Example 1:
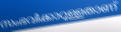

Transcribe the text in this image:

സംഭവിക്കാറുള്ളതാണ്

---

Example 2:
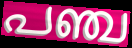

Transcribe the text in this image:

പഞ്ച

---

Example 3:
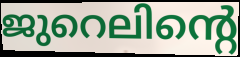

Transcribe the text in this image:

ജുറെലിന്റെ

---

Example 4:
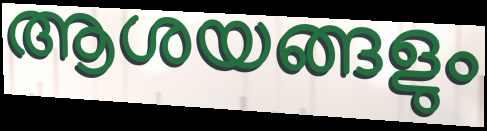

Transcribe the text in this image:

ആശയങ്ങളും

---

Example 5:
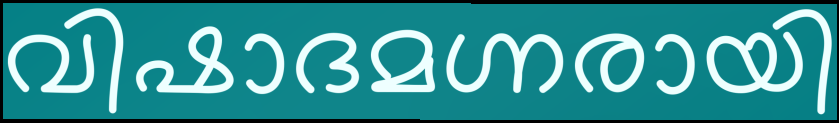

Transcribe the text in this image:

വിഷാദമഗ്നരായി